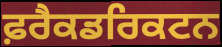
ਫ਼ਰੈਕਡਰਿਕਟਨ